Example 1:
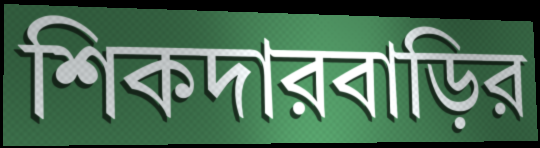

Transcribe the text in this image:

শিকদারবাড়ির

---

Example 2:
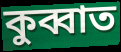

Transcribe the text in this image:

কুব্বাত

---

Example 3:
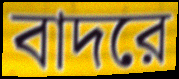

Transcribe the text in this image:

বাদরে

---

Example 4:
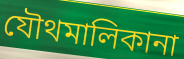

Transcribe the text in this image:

যৌথমালিকানা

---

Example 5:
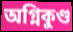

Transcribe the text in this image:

অগ্নিকুণ্ড